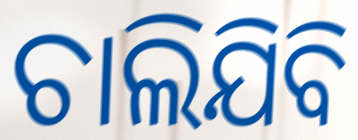
ଚାଲିଯିବି